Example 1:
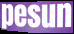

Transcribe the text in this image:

pesun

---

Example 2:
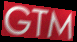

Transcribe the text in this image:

GTM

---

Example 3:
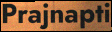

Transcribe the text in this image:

Prajnapti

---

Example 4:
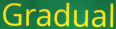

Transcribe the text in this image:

Gradual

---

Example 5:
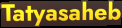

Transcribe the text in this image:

Tatyasaheb